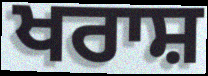
ਖਰਾਸ਼